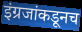
इंग्रजांकडूनच